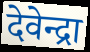
देवेन्द्रा